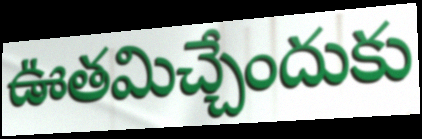
ఊతమిచ్చేందుకు